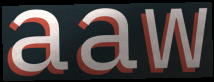
aaw